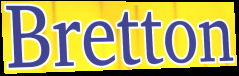
Bretton